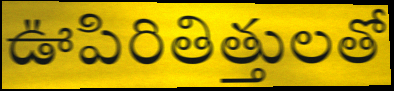
ఊపిరితిత్తులతో